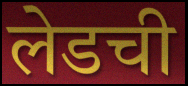
लेडची